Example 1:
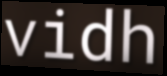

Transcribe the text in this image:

vidh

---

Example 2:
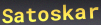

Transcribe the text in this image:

Satoskar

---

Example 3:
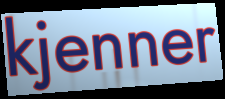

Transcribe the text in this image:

kjenner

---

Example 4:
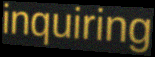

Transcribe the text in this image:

inquiring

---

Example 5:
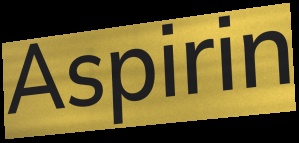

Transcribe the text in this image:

Aspirin